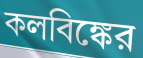
কলবিঙ্কের